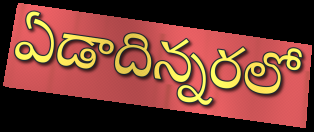
ఏడాదిన్నరలో